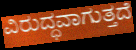
ವಿರುದ್ಧವಾಗುತ್ತದೆ